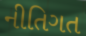
નીતિગત